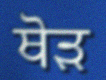
ਥੋੜ